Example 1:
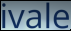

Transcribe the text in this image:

ivale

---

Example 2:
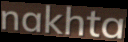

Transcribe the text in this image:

nakhta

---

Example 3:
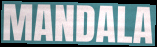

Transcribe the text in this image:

MANDALA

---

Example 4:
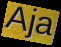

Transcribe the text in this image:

Aja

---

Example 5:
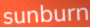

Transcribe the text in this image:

sunburn